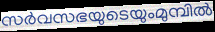
സർവസഭയുടെയുംമുമ്പിൽ